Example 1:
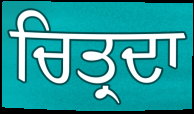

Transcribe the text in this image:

ਚਿਤ੍ਰਦਾ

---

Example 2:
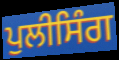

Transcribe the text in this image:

ਪੁਲੀਸਿੰਗ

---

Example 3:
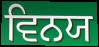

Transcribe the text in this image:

ਵਿਨਯ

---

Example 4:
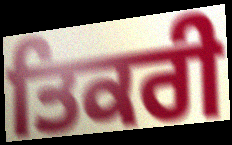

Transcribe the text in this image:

ਤਿਕਰੀ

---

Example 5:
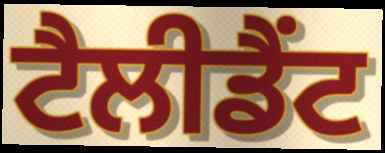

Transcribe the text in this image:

ਟੈਲੀਡੈਂਟ